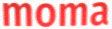
moma